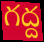
గద్ద